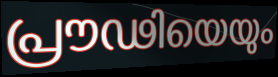
പ്രൗഢിയെയും